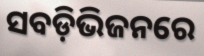
ସବଡ଼ିଭିଜନରେ